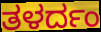
ತಳರ್ದಂ